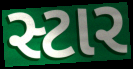
સ્ટાર